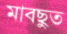
মাবছুত